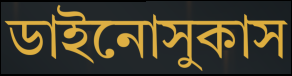
ডাইনোসুকাস